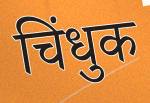
चिंधुक